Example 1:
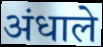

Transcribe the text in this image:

अंधाले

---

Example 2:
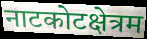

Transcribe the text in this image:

नाटकोटक्षेत्रम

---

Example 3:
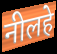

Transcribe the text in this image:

नीलहे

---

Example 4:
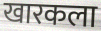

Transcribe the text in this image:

खारकला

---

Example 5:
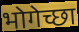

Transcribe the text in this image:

भोगेच्छा